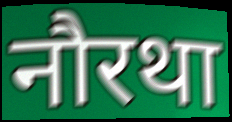
नौरथा